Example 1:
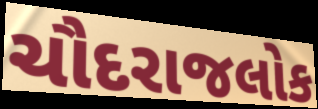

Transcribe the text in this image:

ચૌદરાજલોક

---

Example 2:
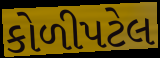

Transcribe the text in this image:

કોળીપટેલ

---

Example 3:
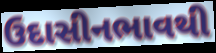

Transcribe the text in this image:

ઉદાસીનભાવથી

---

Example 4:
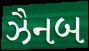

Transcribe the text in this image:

ઝૈનબ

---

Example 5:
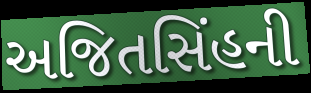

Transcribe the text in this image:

અજિતસિંહની